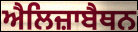
ਐਲਿਜ਼ਾਬੈਥਨ